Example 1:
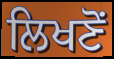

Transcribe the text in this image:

ਲਿਖਣੋਂ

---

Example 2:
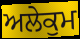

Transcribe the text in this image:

ਅਲੇਕੁਮ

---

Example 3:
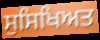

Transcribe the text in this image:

ਸੁਸਿਖਿਅਤ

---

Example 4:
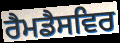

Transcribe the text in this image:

ਰੈਮਡੈਸਵਿਰ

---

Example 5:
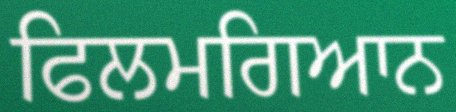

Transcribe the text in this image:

ਫਿਲਮਗਿਆਨ